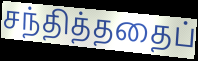
சந்தித்ததைப்